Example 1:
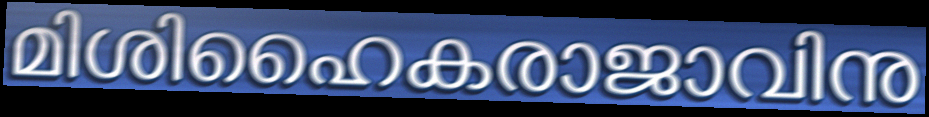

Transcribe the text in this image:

മിശിഹൈകരാജാവിനു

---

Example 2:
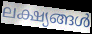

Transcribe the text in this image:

ലക്ഷ്യങ്ങൾ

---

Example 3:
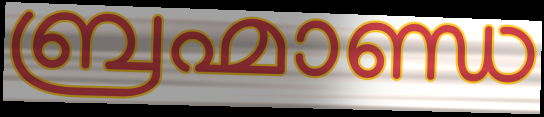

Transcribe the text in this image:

ബ്രഹ്മാണ്ഡ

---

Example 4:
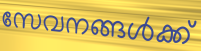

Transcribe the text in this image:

സേവനങ്ങൾക്ക്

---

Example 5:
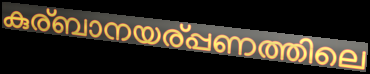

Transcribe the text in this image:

കുര്ബാനയര്പ്പണത്തിലെ